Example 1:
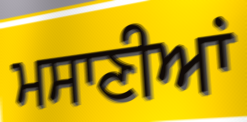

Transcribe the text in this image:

ਮਸਾਣੀਆਂ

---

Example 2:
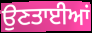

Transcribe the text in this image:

ਉਣਤਾਈਆਂ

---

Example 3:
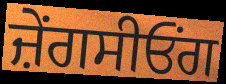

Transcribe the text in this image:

ਜ਼ੇਂਗਸੀਓਂਗ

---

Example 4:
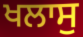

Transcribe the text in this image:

ਖਲਾਸੁ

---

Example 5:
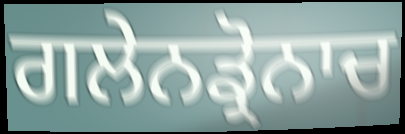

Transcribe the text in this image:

ਗਲੇਨਡ੍ਰੋਨਾਚ